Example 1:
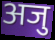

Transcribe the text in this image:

अजु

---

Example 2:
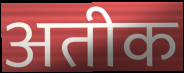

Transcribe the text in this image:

अतीक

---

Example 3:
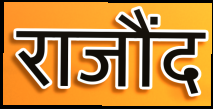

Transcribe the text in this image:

राजौंद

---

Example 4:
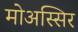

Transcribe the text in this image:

मोअस्सिर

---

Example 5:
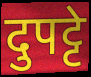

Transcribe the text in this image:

दुपट्टे